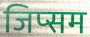
जिप्सम